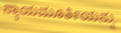
ನ್ಯಾಯಮೂರ್ತಿಯನ್ನು